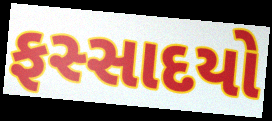
ફસ્સાદયો